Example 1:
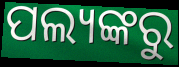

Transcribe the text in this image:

ପଲ୍ୟଙ୍କରୁ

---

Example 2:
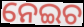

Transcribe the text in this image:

ନେଇଚ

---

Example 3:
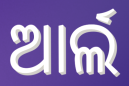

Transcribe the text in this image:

ଆର୍ଲ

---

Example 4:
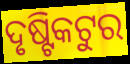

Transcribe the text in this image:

ଦୃଷ୍ଟିକଟୁର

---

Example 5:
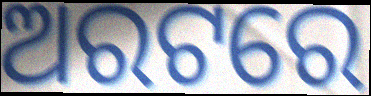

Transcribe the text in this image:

ଅରଟରେ